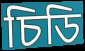
চিডি